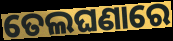
ତେଲଘଣାରେ